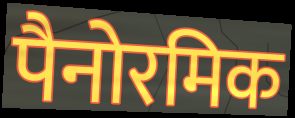
पैनोरमिक